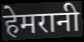
हेमरानी